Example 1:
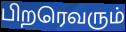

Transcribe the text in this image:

பிறரெவரும்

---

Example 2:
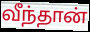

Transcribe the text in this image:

வீந்தான்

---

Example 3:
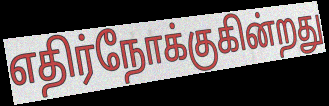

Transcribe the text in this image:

எதிர்நோக்குகின்றது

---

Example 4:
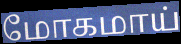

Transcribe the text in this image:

மோகமாய்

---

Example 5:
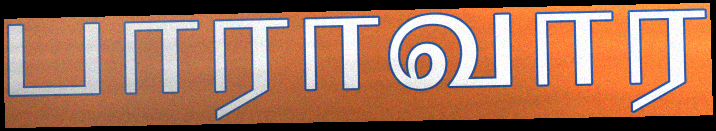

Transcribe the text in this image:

பாராவார